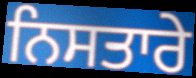
ਨਿਸਤਾਰੇ